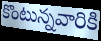
కొంటున్నవారికి